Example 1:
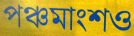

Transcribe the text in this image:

পঞ্চমাংশও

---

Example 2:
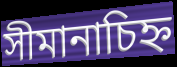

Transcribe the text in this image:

সীমানাচিহ্ন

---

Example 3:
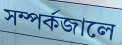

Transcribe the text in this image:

সম্পর্কজালে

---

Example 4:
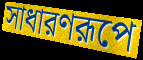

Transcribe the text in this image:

সাধারণরূপে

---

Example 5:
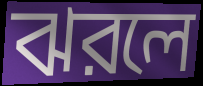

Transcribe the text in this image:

ঝরলে